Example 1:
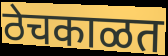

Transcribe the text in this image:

ठेचकाळत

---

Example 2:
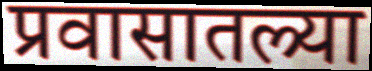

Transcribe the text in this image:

प्रवासातल्या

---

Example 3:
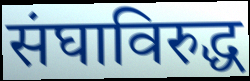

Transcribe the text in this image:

संघाविरुद्ध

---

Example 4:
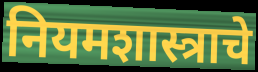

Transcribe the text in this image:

नियमशास्त्राचे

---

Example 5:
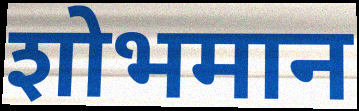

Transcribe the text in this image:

शोभमान